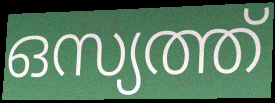
ഒസ്യത്ത്